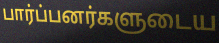
பார்ப்பனர்களுடைய